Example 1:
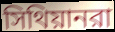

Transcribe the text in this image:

সিথিয়ানরা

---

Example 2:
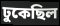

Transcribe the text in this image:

ঢুকেছিল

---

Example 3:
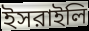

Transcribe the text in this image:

ইসরাইলি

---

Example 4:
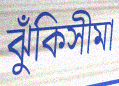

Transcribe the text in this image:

ঝুঁকিসীমা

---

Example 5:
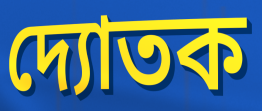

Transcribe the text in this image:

দ্যোতক